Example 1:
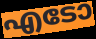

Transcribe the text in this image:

എടോ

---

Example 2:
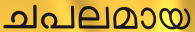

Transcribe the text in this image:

ചപലമായ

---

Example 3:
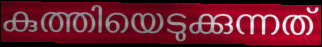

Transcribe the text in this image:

കുത്തിയെടുക്കുന്നത്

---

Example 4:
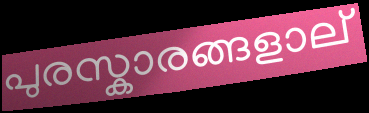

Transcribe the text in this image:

പുരസ്കാരങ്ങളാല്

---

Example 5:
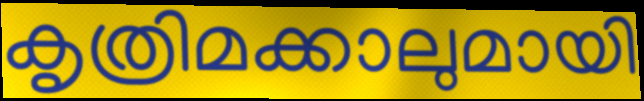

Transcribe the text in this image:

കൃത്രിമക്കാലുമായി